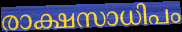
രാക്ഷസാധിപം